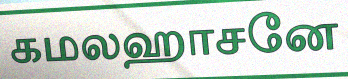
கமலஹாசனே